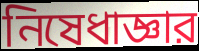
নিষেধাজ্ঞার